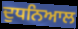
ਦੁਧਨਿਆਲ